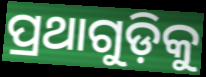
ପ୍ରଥାଗୁଡ଼ିକୁ